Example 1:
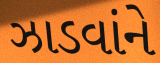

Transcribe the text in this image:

ઝાડવાંને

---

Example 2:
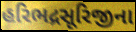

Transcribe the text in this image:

હરિભદ્રસૂરિજીના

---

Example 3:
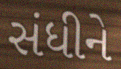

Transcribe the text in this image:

સંધીને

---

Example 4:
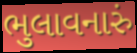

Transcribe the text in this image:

ભુલાવનારું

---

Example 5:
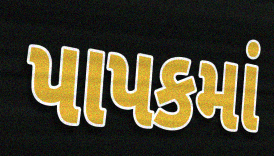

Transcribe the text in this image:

પાપકમાં